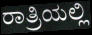
ರಾತ್ರಿಯಲ್ಲಿ